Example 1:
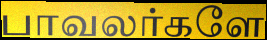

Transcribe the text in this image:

பாவலர்களே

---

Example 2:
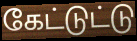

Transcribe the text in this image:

கேட்டுட்டு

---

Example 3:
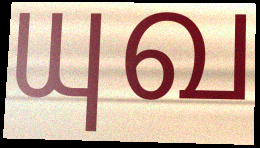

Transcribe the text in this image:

யுவ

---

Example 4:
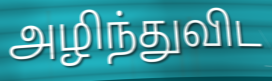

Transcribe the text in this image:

அழிந்துவிட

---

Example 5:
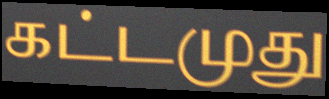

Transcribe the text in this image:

கட்டமுது